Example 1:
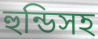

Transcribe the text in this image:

হুন্ডিসহ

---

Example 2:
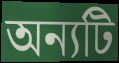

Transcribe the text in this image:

অন্যটি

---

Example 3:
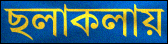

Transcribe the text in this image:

ছলাকলায়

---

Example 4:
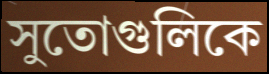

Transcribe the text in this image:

সুতোগুলিকে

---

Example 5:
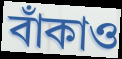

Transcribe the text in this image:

বাঁকাও